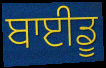
ਬਾਈਡੂ